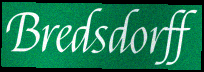
Bredsdorff